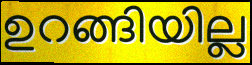
ഉറങ്ങിയില്ല